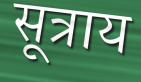
सूत्राय